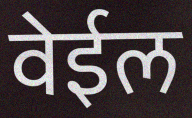
वेईल